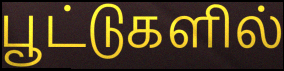
பூட்டுகளில்